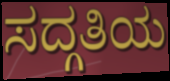
ಸದ್ಗತಿಯ